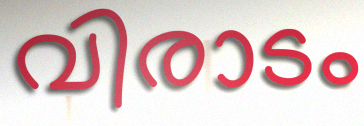
വിരാടം